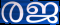
രജ